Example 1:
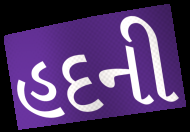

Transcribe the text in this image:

હદની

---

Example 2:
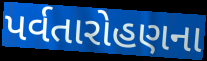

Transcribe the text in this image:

પર્વતારોહણના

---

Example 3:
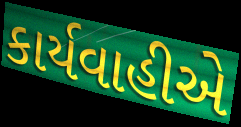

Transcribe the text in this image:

કાર્યવાહીએ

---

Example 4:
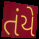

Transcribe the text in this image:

તંયે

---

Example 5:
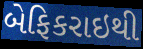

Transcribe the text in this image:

બેફિકરાઇથી